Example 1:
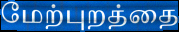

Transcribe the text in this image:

மேற்புறத்தை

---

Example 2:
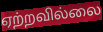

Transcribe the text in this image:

ஏற்றவில்லை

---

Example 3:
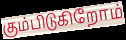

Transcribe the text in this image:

கும்பிடுகிறோம்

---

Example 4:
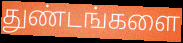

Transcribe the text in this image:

துண்டங்களை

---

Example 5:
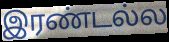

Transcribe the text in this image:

இரண்டல்ல